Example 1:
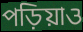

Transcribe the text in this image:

পড়িয়াও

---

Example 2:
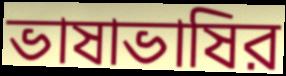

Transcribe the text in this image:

ভাষাভাষির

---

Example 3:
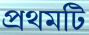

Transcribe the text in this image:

প্রথমটি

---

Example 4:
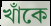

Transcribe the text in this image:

খাঁকে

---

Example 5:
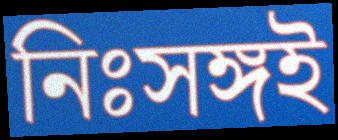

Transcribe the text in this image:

নিঃসঙ্গই